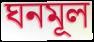
ঘনমূল